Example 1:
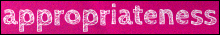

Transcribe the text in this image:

appropriateness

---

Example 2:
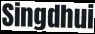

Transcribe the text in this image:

Singdhui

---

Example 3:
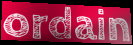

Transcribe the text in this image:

ordain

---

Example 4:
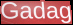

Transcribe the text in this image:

Gadag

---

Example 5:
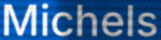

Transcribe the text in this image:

Michels